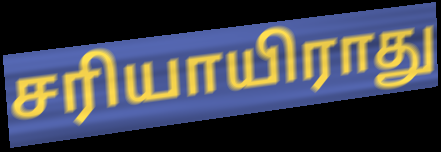
சரியாயிராது